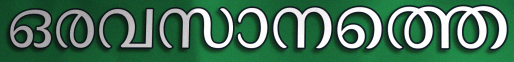
ഒരവസാനത്തെ